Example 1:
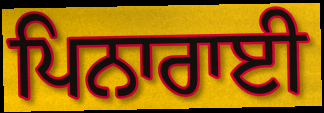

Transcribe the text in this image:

ਪਿਨਾਰਾਈ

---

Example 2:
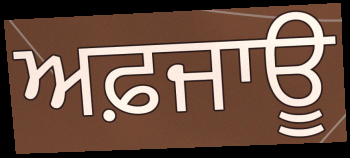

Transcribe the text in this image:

ਅਫ਼ਜਾਊ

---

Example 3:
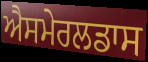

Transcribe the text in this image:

ਐਸਮੇਰਲਡਾਸ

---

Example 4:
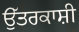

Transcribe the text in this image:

ਉੱਤਰਕਾਸ਼ੀ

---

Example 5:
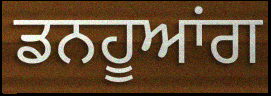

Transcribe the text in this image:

ਡਨਹੂਆਂਗ